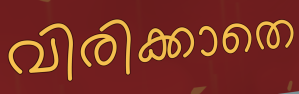
വിരിക്കാതെ